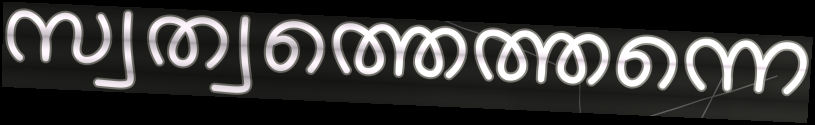
സ്വത്വത്തെത്തന്നെ